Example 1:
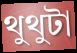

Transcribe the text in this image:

থুথুটা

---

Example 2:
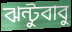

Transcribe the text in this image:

ঝন্টুবাবু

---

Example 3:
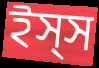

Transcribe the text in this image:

ইস্‌স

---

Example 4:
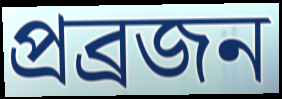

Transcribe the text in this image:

প্রব্রজন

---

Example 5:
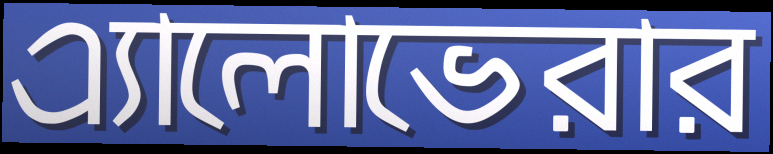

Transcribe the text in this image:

এ্যালোভেরার